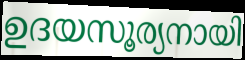
ഉദയസൂര്യനായി